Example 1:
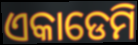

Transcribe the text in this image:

ଏକାଡେମି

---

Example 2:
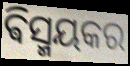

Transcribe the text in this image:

ଵିସ୍ମୟକର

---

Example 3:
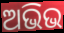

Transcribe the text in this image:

ଅଭିଭ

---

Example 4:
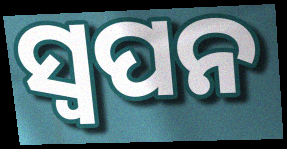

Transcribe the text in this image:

ସ୍ବପନ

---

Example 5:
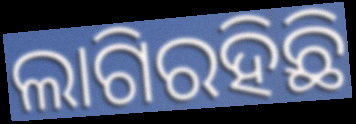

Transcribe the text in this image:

ଲାଗିରହିଛି